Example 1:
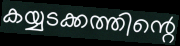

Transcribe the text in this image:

കയ്യടക്കത്തിന്റെ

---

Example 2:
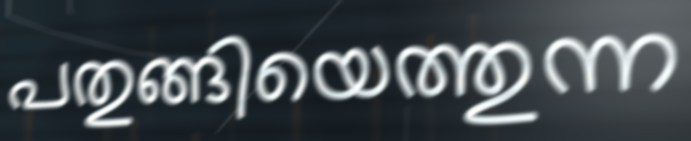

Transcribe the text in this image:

പതുങ്ങിയെത്തുന്ന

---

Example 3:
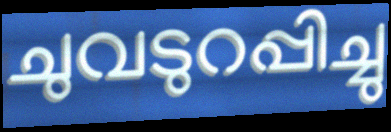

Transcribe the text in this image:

ചുവടുറപ്പിച്ചു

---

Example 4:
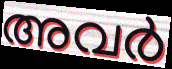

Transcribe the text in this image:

അവർ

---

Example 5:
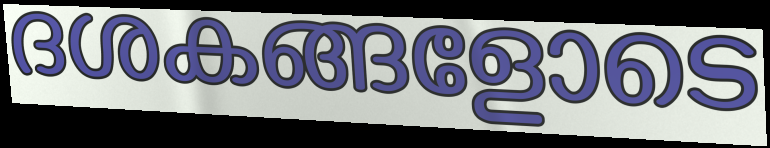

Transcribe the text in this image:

ദശകങ്ങളോടെ